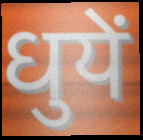
धुयें